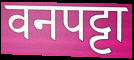
वनपट्टा